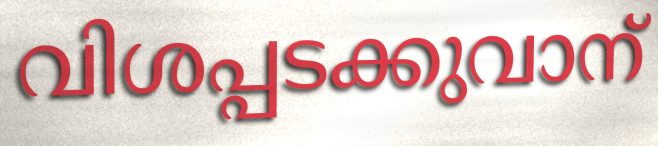
വിശപ്പടക്കുവാന്